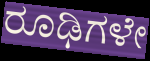
ರೂಢಿಗಳೇ